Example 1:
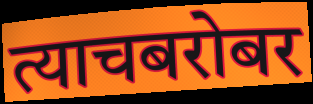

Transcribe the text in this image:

त्याचबरोबर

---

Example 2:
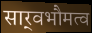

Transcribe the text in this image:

सार्वभौमत्व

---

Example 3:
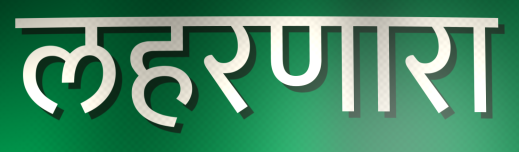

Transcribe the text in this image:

लहरणारा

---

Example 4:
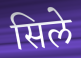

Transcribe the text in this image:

सिले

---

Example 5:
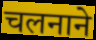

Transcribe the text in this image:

चलनाने